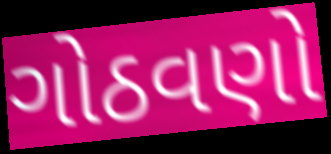
ગોઠવણો